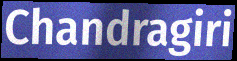
Chandragiri